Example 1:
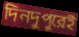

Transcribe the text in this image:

দিনদুপুরেই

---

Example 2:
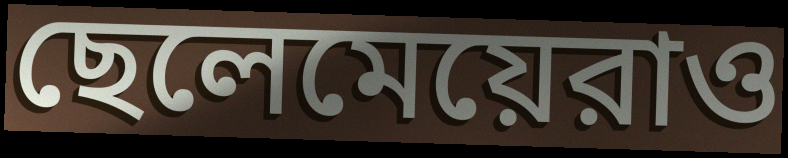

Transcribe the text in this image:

ছেলেমেয়েরাও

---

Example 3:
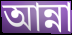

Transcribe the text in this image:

আন্না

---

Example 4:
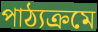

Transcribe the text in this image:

পাঠ্যক্রমে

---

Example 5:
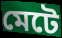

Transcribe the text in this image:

মেটে